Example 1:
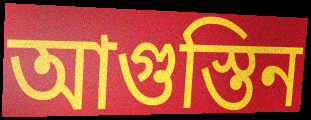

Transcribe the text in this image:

আগুস্তিন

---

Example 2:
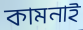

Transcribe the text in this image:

কামনাই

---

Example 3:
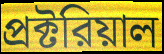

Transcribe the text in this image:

প্রক্টরিয়াল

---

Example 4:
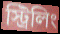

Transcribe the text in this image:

স্ট্রিলিং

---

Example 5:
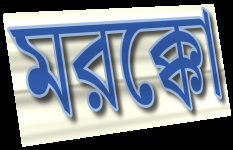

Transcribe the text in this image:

মরক্কো